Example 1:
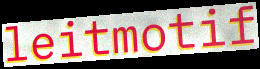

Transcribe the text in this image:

leitmotif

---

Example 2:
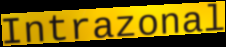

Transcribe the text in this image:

Intrazonal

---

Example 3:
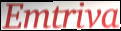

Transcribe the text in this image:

Emtriva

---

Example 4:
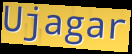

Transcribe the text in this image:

Ujagar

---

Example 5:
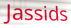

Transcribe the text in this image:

Jassids